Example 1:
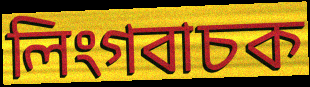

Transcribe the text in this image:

লিংগবাচক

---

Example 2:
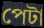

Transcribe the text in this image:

পেটা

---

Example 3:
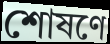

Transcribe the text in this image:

শোষণে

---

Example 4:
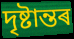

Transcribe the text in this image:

দৃষ্টান্তৰ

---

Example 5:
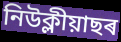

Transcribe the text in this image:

নিউক্লীয়াছৰ